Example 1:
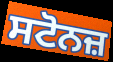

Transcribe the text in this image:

ਸਟੋਨਜ਼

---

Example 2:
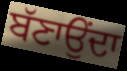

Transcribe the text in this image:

ਬੱਣਾਉਂਦਾ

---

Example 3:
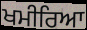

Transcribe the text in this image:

ਖਮੀਰਿਆ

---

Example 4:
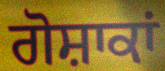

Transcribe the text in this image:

ਗੋਸ਼ਾਕਾਂ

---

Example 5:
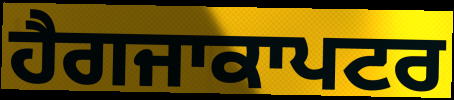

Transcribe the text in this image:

ਹੈਗਜਾਕਾਪਟਰ